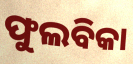
ଫୁଲବିକା